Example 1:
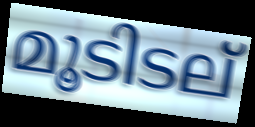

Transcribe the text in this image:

മൂടിടല്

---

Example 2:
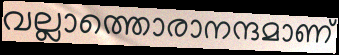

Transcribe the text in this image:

വല്ലാത്തൊരാനന്ദമാണ്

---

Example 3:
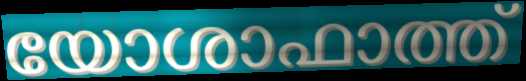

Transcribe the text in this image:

യോശാഫാത്ത്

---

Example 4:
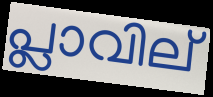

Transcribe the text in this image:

പ്ലാവില്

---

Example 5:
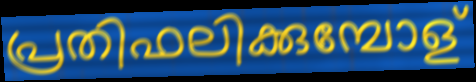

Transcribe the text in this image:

പ്രതിഫലിക്കുമ്പോള്